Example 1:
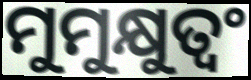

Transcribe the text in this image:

ମୁମୁକ୍ଷୁତ୍ୱଂ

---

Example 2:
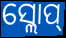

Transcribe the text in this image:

ସ୍ଲୋପ୍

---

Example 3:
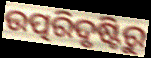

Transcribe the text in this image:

ଉତ୍ପରିଦୃଷ୍ଟିରୁ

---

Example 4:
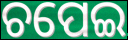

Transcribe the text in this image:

ଚପେଇ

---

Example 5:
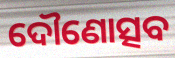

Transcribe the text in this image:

ଦୌଣୋତ୍ସବ